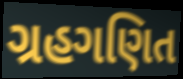
ગ્રહગણિત